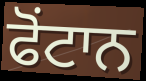
ਫੋਂਟਾਨ